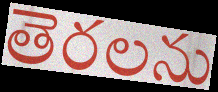
తెరలను